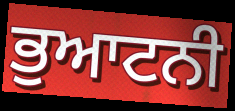
ਭੁਆਟਨੀ